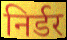
निर्डर